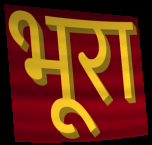
भूरा